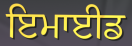
ਇਮਾਈਡ